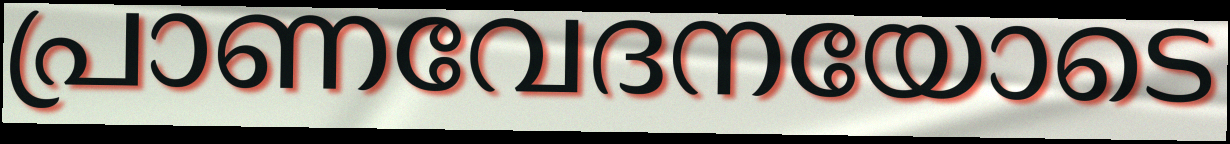
പ്രാണവേദനയോടെ